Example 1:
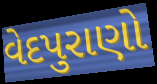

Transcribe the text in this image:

વેદપુરાણો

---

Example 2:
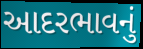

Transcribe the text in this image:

આદરભાવનું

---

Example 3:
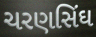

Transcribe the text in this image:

ચરણસિંઘ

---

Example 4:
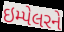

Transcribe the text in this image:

ઇમ્પેલરને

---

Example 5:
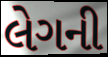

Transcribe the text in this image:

લેગની